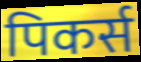
पिकर्स